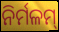
ନିର୍ମଳମ୍